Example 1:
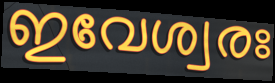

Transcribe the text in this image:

ഇവേശ്വരഃ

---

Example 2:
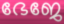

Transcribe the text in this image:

ഭേജേ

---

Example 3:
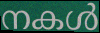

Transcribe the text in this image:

നകൾ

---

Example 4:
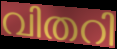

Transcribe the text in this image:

വിതറി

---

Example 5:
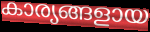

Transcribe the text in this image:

കാര്യങ്ങളായ